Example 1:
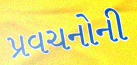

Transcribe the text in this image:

પ્રવચનોની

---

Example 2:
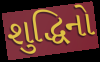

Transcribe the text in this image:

શુદ્ધિનો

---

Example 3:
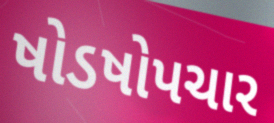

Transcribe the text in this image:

ષોડષોપચાર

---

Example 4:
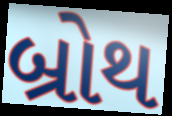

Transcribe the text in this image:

બ્રોથ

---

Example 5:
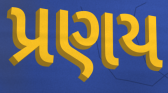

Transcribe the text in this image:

પ્રણય